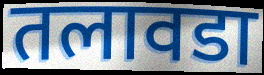
तलावडा